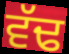
ਵੱਢ